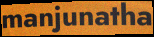
manjunatha